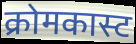
क्रोमकास्ट